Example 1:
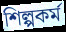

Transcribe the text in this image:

শিল্পকর্ম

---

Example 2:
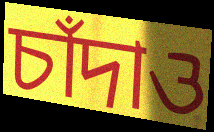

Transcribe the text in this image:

চাঁদাও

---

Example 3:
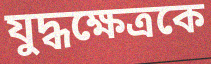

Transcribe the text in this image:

যুদ্ধক্ষেত্রকে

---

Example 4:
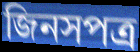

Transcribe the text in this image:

জিনসপত্র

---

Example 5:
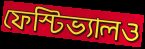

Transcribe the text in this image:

ফেস্টিভ্যালও